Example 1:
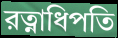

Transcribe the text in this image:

রত্নাধিপতি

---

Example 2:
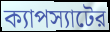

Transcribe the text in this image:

ক্যাপস্যাটের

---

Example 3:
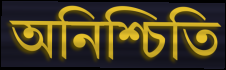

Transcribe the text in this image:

অনিশ্চিতি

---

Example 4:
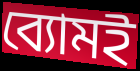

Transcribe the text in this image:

ব্যোমই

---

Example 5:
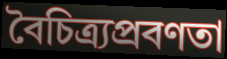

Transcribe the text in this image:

বৈচিত্র্যপ্রবণতা